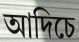
আদিচে